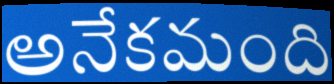
అనేకమంది